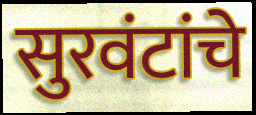
सुरवंटांचे